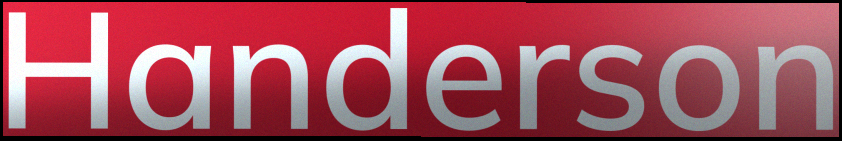
Handerson